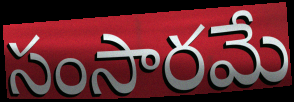
సంసారమే